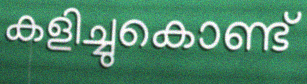
കളിച്ചുകൊണ്ട്